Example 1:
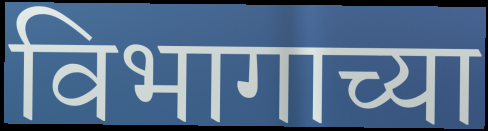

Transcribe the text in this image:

विभागाच्या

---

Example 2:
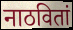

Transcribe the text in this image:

नाठवितां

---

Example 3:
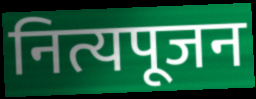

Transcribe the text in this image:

नित्यपूजन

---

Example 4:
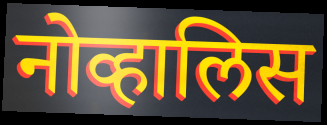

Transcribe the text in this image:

नोव्हालिस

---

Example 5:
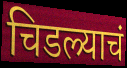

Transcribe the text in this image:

चिडल्याचं